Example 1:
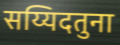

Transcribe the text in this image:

सय्यिदतुना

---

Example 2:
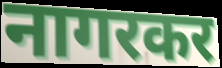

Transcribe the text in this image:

नागरकर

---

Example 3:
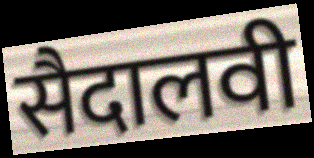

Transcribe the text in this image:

सैदालवी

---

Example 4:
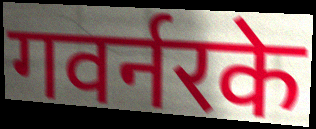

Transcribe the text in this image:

गवर्नरके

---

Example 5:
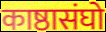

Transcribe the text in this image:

काष्ठासंघो